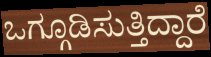
ಒಗ್ಗೂಡಿಸುತ್ತಿದ್ದಾರೆ